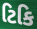
ટિકિ